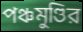
পঞ্চমুণ্ডির